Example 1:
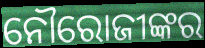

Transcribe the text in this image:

ନୌରୋଜୀଙ୍କର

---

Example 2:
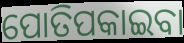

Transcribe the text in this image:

ପୋତିପକାଇବା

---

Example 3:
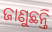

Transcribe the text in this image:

ଜାଣୁଛନ୍ତି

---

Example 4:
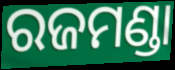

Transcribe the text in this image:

ରଜମଣ୍ଡା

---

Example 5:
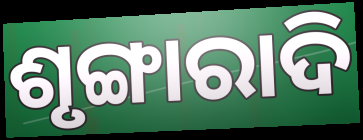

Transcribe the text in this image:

ଶୃଙ୍ଗାରାଦି